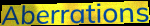
Aberrations